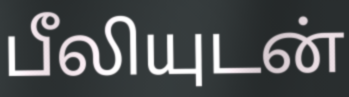
பீலியுடன்